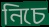
নিচে